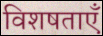
विशषताएँ